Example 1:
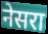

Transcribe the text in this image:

नेसरा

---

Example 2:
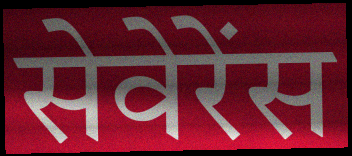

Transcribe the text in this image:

सेवेरेंस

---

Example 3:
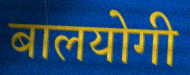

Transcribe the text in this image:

बालयोगी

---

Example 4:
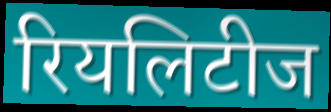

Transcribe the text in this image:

रियलिटीज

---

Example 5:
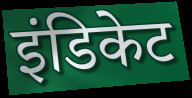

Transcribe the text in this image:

इंडिकेट